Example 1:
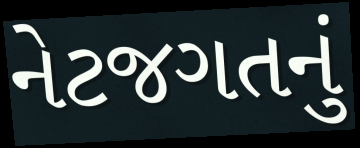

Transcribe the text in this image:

નેટજગતનું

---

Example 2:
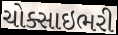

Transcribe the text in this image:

ચોક્સાઇભરી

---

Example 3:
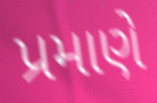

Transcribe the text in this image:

પ્રમાણે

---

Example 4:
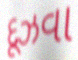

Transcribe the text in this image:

દૂઝવા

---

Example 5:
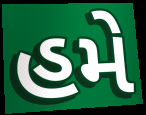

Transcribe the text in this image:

હમે